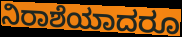
ನಿರಾಶೆಯಾದರೂ